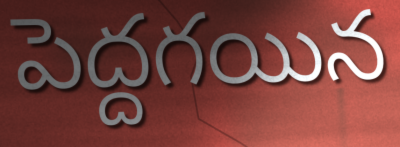
పెద్దగయిన